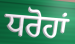
ਧਰੋਹਾਂ